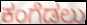
ಕಂಗೆಡಲು